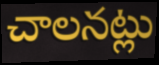
చాలనట్లు